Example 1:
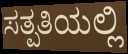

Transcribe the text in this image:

ಸತ್ಪತಿಯಲ್ಲಿ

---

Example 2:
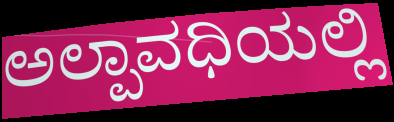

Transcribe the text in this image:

ಅಲ್ಪಾವಧಿಯಲ್ಲಿ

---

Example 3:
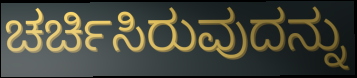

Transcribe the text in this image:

ಚರ್ಚಿಸಿರುವುದನ್ನು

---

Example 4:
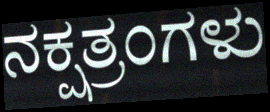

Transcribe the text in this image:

ನಕ್ಷತ್ರಂಗಳು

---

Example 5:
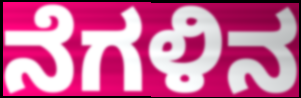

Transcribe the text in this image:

ನೆಗಳಿನ